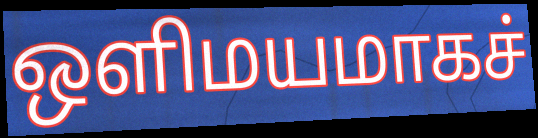
ஒளிமயமாகச்